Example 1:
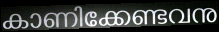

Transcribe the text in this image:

കാണിക്കേണ്ടവനു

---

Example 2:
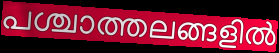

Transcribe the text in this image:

പശ്ചാത്തലങ്ങളിൽ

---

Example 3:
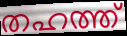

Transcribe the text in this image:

തഹത്ത്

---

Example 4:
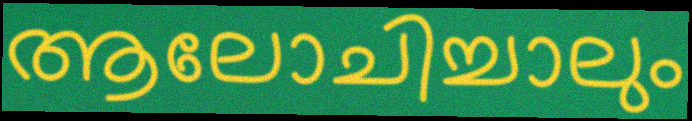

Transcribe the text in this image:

ആലോചിച്ചാലും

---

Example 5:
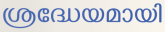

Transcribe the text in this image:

ശ്രദ്ധേയമായി